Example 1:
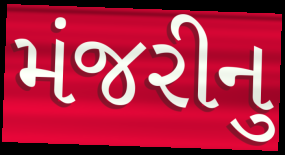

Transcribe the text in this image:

મંજરીનુ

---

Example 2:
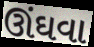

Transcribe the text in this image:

ઊંઘવા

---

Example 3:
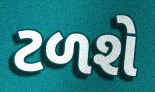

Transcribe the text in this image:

ટળશે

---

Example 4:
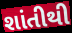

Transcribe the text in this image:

શાંતીથી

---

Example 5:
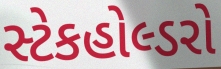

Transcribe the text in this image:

સ્ટેકહોલ્ડરો